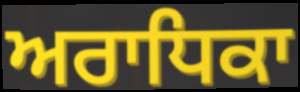
ਅਰਾਧਿਕਾ